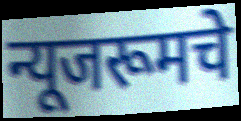
न्यूजरूमचे